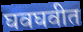
घवघवीत